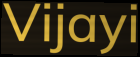
Vijayi